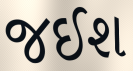
જઈશ